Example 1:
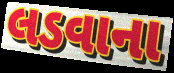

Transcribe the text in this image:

લડવાના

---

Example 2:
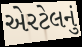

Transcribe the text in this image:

એરટેલનું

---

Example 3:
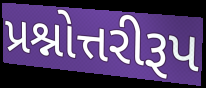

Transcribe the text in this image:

પ્રશ્નોત્તરીરૂપ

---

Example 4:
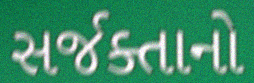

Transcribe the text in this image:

સર્જક્તાનો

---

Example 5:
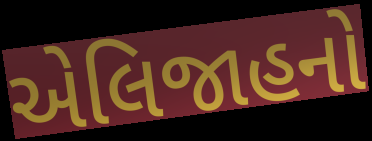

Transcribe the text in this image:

એલિજાહનો